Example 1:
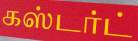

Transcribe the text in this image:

கஸ்டர்ட்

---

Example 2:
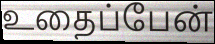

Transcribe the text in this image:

உதைப்பேன்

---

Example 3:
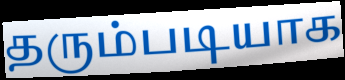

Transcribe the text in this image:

தரும்படியாக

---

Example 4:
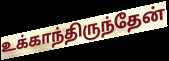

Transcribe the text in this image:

உக்காந்திருந்தேன்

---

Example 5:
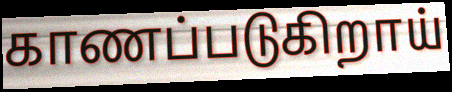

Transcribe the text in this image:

காணப்படுகிறாய்